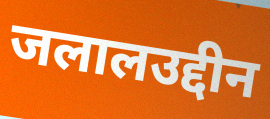
जलालउद्दीन